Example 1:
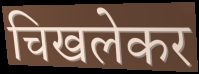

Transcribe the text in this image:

चिखलेकर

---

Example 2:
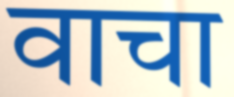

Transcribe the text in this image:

वाचा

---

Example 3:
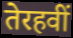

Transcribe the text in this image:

तेरहवीं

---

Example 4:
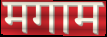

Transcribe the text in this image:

मगाम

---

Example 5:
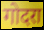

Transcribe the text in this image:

गोदरा